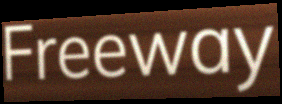
Freeway